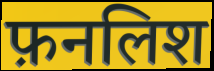
फ़नलिश